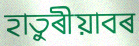
হাতুৰীয়াবৰ